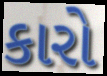
કારો